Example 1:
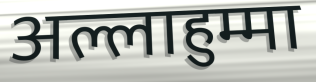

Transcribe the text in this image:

अल्लाहुम्मा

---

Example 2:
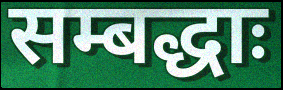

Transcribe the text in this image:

सम्बद्धाः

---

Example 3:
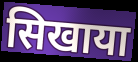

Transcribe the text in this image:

सिखाया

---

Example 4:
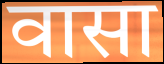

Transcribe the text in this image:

वासा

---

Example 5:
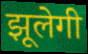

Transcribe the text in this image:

झूलेगी